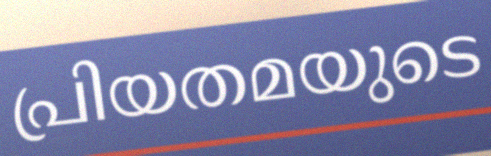
പ്രിയതമയുടെ